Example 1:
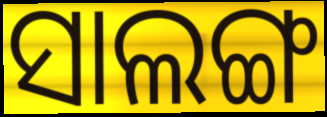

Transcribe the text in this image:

ସାଲଙ୍ଗ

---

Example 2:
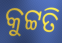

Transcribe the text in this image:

କୁଟ୍ଟତି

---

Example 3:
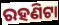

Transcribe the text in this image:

ରହଣିଟା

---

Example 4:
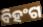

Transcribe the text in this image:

ବିହଂଗ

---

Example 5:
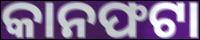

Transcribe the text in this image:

କାନଫଟା